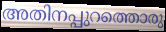
അതിനപ്പുറത്തൊരു